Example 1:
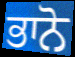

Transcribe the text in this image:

ਭਾਨੋ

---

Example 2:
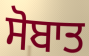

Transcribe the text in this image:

ਸੋਬਾਤ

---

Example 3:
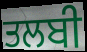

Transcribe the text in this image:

ਤਲਬੀ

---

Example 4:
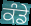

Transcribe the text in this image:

ਕੰਡੇ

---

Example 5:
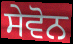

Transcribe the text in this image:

ਸੇਵੋਨ